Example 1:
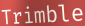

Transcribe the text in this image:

Trimble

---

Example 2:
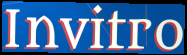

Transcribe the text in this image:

Invitro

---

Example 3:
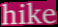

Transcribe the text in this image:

hike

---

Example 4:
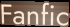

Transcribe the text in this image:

Fanfic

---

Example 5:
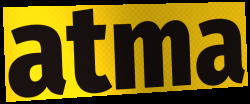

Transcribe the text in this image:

atma